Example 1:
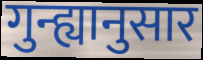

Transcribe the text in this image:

गुन्ह्यानुसार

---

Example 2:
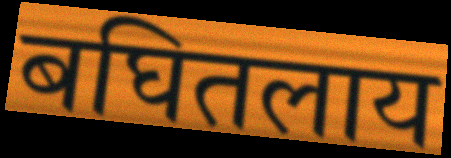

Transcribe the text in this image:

बघितलाय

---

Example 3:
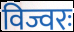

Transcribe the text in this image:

विज्वरः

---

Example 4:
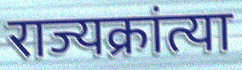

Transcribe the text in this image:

राज्यक्रांत्या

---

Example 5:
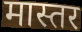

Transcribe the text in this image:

मास्तर